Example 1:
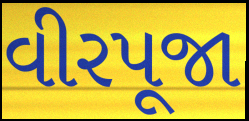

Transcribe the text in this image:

વીરપૂજા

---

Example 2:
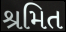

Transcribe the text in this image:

શ્રમિત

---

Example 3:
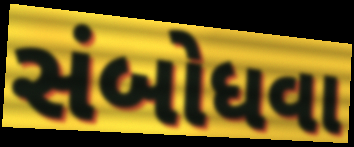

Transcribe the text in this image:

સંબોધવા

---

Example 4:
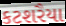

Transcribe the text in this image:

કટશરૈયા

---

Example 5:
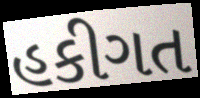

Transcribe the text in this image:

હકીગત